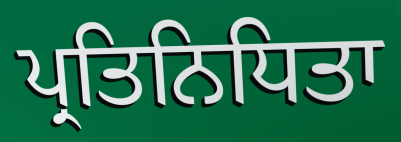
ਪ੍ਰਤਿਨਿਧਿਤਾ